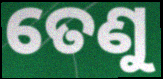
ତେଣୁ